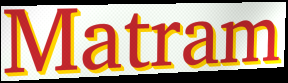
Matram